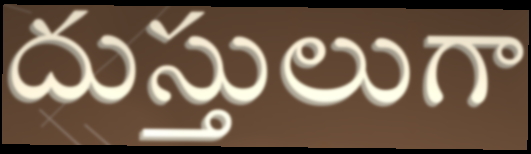
దుస్తులుగా